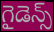
గైడెన్స్